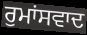
ਰੁਮਾਂਸਵਾਦ